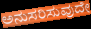
ಅನುಸರಿಸುವುದೇ